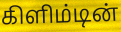
கிளிம்டின்